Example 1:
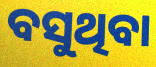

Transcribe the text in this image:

ବସୁଥିବା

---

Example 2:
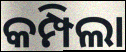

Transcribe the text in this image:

କମ୍ପିଲା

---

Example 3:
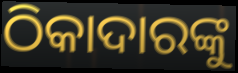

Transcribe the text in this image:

ଠିକାଦାରଙ୍କୁ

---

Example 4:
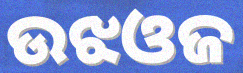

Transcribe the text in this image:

ଉଝଓଜ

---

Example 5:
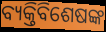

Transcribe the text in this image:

ବ୍ୟକ୍ତିବିଶେଷଙ୍କ